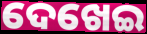
ଦେଖେଇ